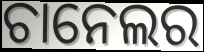
ଚାନେଲର